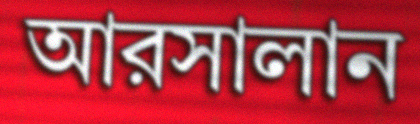
আরসালান